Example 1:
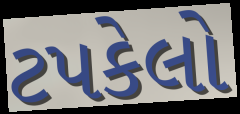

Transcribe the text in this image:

ટપકેલો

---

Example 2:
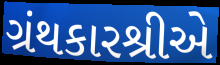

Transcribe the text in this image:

ગ્રંથકારશ્રીએ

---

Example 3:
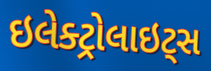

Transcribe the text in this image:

ઇલેક્ટ્રોલાઇટ્સ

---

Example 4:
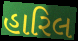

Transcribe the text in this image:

હારિલ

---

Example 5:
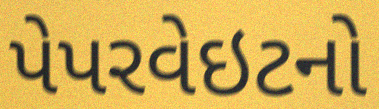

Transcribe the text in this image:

પેપરવેઇટનો